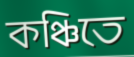
কঞ্চিতে